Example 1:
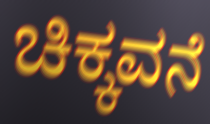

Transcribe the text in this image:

ಚಿಕ್ಕವನೆ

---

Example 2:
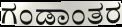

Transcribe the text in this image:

ಗಂಡಾಂತರ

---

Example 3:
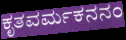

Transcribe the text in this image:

ಕೃತವರ್ಮಕನನಂ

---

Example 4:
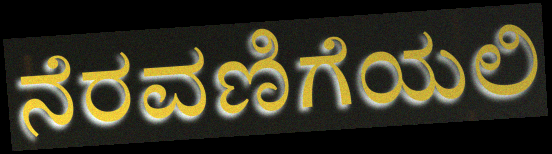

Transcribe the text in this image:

ನೆರವಣಿಗೆಯಲಿ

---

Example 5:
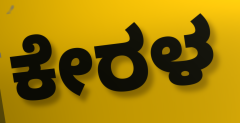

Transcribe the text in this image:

ಕೇರಳ